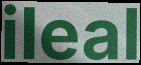
ileal